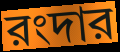
রংদার